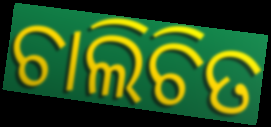
ଚାଲିଚିତ